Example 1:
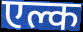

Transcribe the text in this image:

एल्क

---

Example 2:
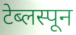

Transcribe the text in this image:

टेब्लस्पून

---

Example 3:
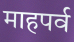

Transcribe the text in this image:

माहपर्व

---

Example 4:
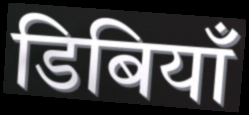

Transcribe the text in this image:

डिबियाँ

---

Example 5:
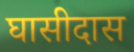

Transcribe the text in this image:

घासीदास